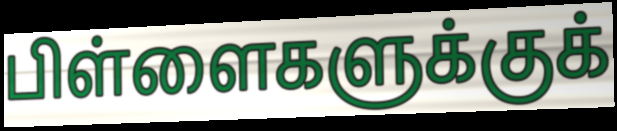
பிள்ளைகளுக்குக்